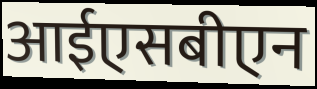
आईएसबीएन